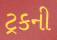
ટ્રકની